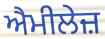
ਐਮੀਲੇਜ਼